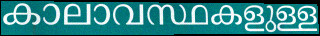
കാലാവസ്ഥകളുള്ള